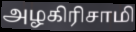
அழகிரிசாமி